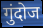
गुंदोज